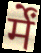
र्में